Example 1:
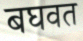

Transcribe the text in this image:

बघवत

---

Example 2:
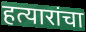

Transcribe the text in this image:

हत्यारांचा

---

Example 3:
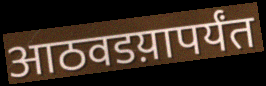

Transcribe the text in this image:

आठवडय़ापर्यंत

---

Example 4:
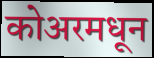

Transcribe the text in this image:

कोअरमधून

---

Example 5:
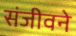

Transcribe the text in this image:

संजीवने